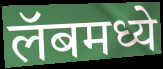
लॅबमध्ये